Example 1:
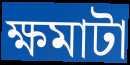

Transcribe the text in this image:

ক্ষমাটা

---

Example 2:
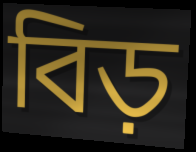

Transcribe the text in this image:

বিড়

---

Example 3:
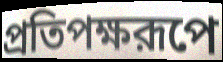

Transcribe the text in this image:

প্রতিপক্ষরূপে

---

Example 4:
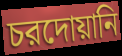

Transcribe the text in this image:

চরদোয়ানি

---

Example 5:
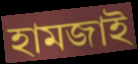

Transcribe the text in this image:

হামজাই